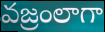
వజ్రంలాగా